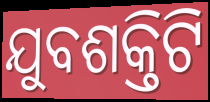
ଯୁବଶକ୍ତିଟି